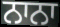
ਨਾਨਾ